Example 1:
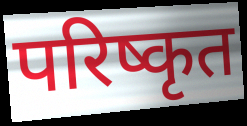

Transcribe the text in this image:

परिष्कृत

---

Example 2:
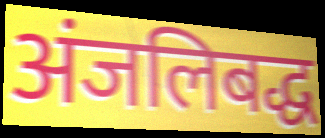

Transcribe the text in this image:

अंजलिबद्ध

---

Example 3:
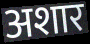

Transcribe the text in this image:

अशार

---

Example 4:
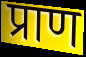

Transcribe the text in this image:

प्राण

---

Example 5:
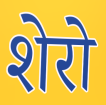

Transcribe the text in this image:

शेरो